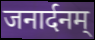
जनार्दनम्